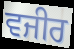
ਵਜੀਰ